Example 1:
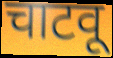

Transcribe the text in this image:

चाटवू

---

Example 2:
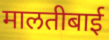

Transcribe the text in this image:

मालतीबाई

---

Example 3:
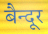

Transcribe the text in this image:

बैन्दूर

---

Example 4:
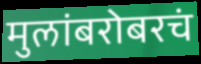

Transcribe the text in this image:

मुलांबरोबरचं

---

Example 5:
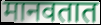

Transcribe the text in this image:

मानवतात